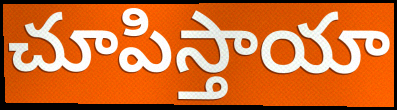
చూపిస్తాయా